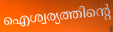
ഐശ്വര്യത്തിന്റെ